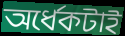
অর্ধেকটাই